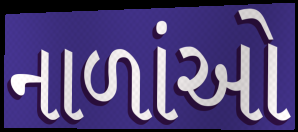
નાળાંઓ